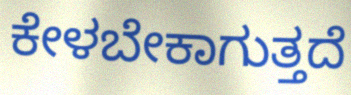
ಕೇಳಬೇಕಾಗುತ್ತದೆ